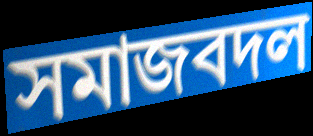
সমাজবদল